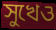
সুখেও